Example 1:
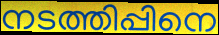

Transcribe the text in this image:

നടത്തിപ്പിനെ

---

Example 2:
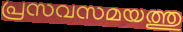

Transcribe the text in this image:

പ്രസവസമയത്തു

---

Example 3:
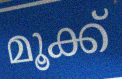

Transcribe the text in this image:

മൂക്ക്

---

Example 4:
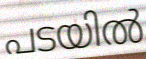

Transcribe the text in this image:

പടയിൽ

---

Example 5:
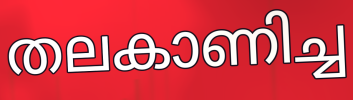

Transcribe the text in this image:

തലകാണിച്ച